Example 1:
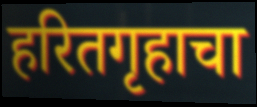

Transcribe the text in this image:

हरितगृहाचा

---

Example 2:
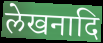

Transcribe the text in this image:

लेखनादि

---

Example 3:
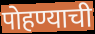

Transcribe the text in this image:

पोहण्याची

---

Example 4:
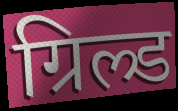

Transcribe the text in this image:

ग्रिल्ड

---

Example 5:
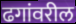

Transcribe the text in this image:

ढगांवरील